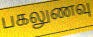
பகலுணவு